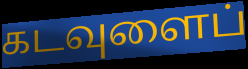
கடவுளைப்